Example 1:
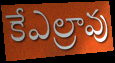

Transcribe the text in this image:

కేఎల్రావు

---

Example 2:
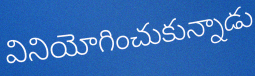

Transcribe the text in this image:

వినియోగించుకున్నాడు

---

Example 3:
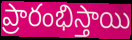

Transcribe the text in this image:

ప్రారంభిస్తాయి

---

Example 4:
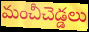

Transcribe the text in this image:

మంచీచెడ్డలు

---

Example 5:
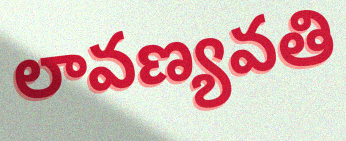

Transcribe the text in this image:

లావణ్యవతి